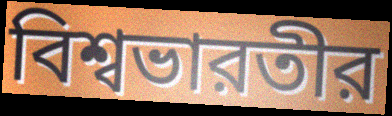
বিশ্বভারতীর